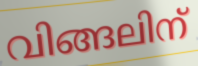
വിങ്ങലിന്